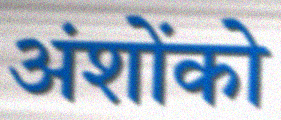
अंशोंको